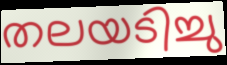
തലയടിച്ചു